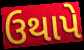
ઉથાપે